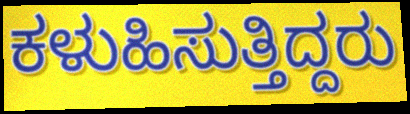
ಕಳುಹಿಸುತ್ತಿದ್ದರು